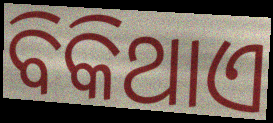
ବିକିଥାଏ